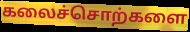
கலைச்சொற்களை